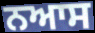
ਨਆਸ